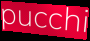
pucchi